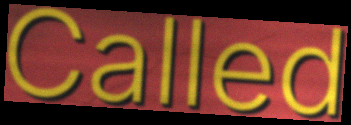
Called